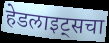
हेडलाइट्सचा